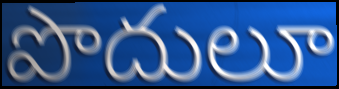
పొదులూ